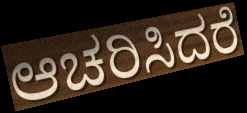
ಆಚರಿಸಿದರೆ